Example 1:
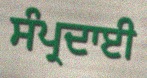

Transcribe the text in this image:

ਸੰਪ੍ਰਦਾਈ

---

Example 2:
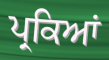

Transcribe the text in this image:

ਪ੍ਰਕਿਆਂ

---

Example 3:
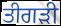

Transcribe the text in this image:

ਤੀਗੜੀ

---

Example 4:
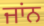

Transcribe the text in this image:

ਜਾਂਨ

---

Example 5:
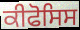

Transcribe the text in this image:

ਕੀਫੋਸਿਸ